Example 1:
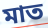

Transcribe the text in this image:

মাত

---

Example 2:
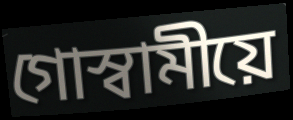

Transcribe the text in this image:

গোস্বামীয়ে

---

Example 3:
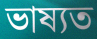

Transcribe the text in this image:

ভাষ্যত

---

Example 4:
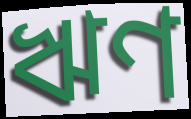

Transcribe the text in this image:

ঋণ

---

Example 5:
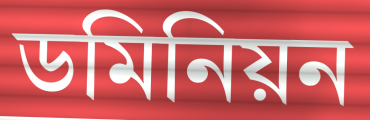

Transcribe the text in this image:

ডমিনিয়ন